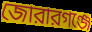
জোরারগঞ্জে